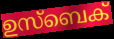
ഉസ്ബെക്